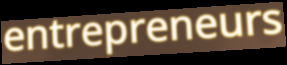
entrepreneurs